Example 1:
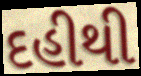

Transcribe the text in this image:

દહીથી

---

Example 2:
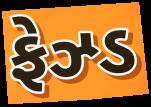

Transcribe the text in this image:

ફેઝ્ડ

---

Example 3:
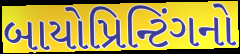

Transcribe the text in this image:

બાયોપ્રિન્ટિંગનો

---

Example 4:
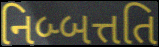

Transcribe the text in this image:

નિબ્બત્તતિ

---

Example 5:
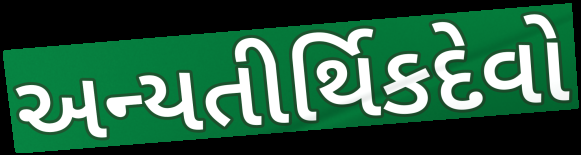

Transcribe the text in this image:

અન્યતીર્થિકદેવો